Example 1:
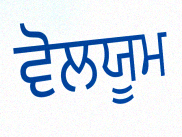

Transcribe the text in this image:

ਵੋਲਯੂਮ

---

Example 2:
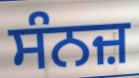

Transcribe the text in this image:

ਸੰਨਜ਼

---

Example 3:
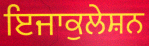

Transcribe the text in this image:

ਇਜਾਕੁਲੇਸ਼ਨ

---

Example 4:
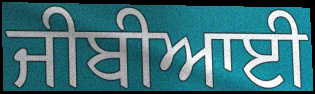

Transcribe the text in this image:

ਜੀਬੀਆਈ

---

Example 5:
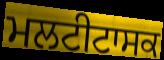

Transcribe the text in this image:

ਮਲਟੀਟਾਸਕ